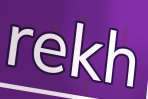
rekh